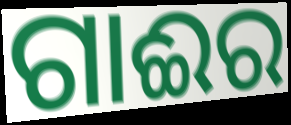
ଗାଈର